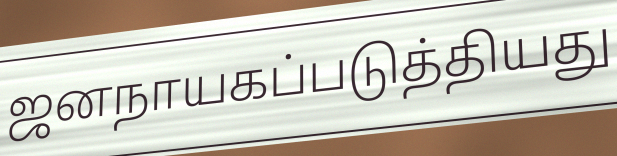
ஜனநாயகப்படுத்தியது